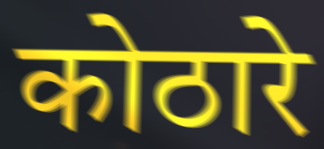
कोठारे